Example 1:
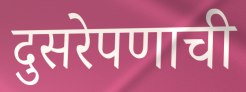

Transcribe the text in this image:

दुसरेपणाची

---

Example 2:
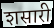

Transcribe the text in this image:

शसारी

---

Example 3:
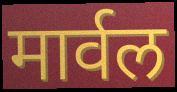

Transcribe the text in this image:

मार्वल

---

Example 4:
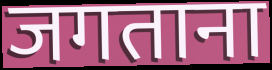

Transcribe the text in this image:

जगताना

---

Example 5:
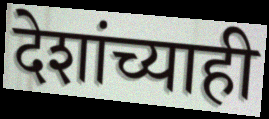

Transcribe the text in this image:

देशांच्याही